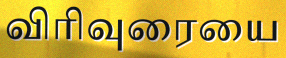
விரிவுரையை